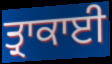
ਤ੍ਰਾਕਾਈ